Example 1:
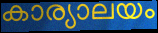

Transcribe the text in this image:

കാര്യാലയം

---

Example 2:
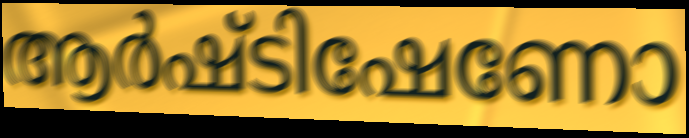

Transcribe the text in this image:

ആർഷ്ടിഷേണോ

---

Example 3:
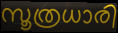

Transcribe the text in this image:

സൂത്രധാരി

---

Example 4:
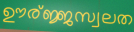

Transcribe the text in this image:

ഊര്ജ്ജസ്വലത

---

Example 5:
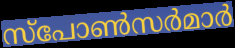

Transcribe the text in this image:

സ്പോൺസർമാർ